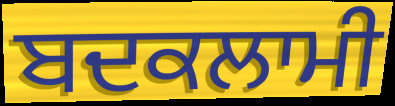
ਬਦਕਲਾਮੀ